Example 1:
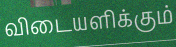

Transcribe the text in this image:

விடையளிக்கும்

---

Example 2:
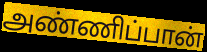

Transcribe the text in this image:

அண்ணிப்பான்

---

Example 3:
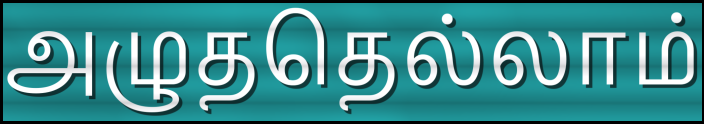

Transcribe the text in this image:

அழுததெல்லாம்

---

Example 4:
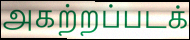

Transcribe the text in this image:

அகற்றப்படக்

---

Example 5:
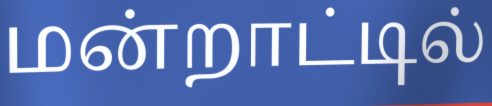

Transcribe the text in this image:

மன்றாட்டில்